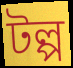
টল্প